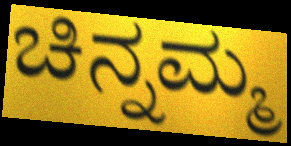
ಚಿನ್ನಮ್ಮ